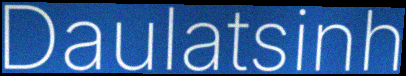
Daulatsinh